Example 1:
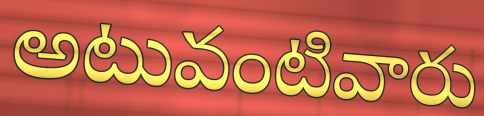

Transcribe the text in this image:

అటువంటివారు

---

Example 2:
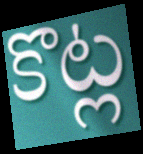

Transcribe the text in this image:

కొట్ల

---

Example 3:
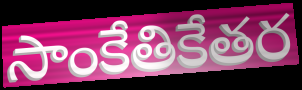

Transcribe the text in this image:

సాంకేతికేతర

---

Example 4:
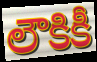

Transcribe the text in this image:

లౌకికీ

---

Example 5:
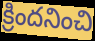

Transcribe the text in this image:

క్రిందనించి